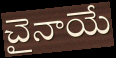
చైనాయే